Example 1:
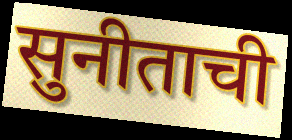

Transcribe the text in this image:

सुनीताची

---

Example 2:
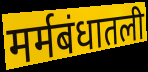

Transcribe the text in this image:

मर्मबंधातली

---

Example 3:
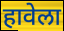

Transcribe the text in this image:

हावेला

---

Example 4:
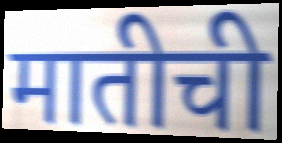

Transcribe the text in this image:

मातीची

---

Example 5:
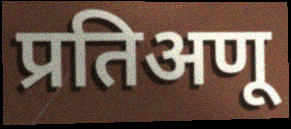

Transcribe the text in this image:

प्रतिअणू